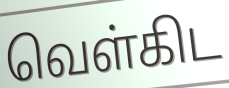
வெள்கிட